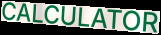
CALCULATOR